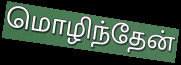
மொழிந்தேன்